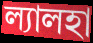
ল্যালহা